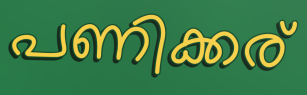
പണിക്കര്